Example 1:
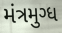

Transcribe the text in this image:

મંત્રમુગ્ધ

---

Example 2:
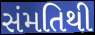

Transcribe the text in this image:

સંમતિથી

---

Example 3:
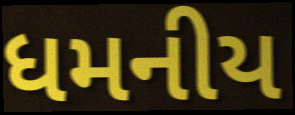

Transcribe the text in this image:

ધમનીય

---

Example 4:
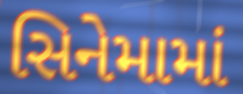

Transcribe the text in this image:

સિનેમામાં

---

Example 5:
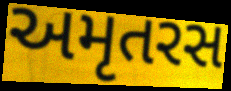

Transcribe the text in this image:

અમૃતરસ